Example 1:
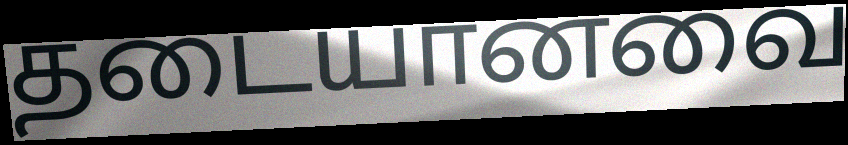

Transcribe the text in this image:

தடையானவை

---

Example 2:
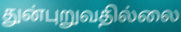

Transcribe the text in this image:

துன்புறுவதில்லை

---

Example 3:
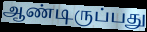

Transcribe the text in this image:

ஆண்டிருப்பது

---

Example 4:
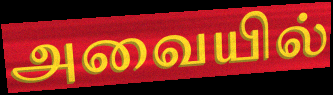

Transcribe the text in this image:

அவையில்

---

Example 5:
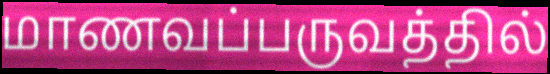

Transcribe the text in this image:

மாணவப்பருவத்தில்